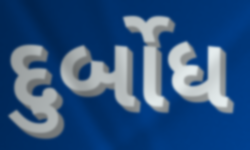
દુર્બોધ